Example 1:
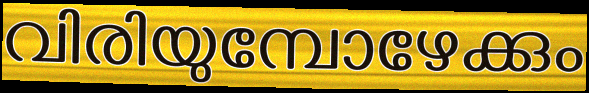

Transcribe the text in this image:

വിരിയുമ്പോഴേക്കും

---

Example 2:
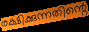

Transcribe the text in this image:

രക്ഷിക്കുന്നതിന്റെ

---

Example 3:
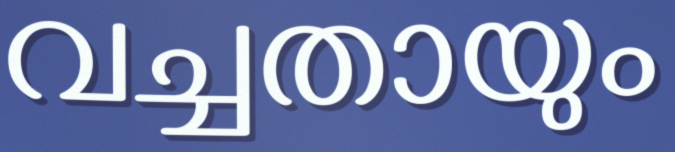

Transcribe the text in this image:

വച്ചതായും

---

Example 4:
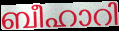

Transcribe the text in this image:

ബീഹാറി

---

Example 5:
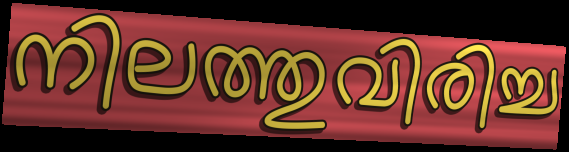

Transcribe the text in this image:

നിലത്തുവിരിച്ച